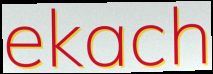
ekach